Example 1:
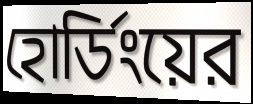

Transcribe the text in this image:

হোর্ডিংয়ের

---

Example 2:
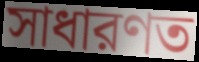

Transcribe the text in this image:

সাধারণত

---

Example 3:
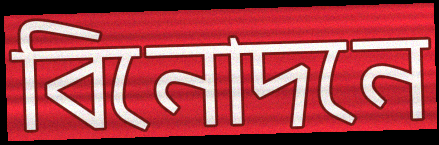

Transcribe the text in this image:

বিনোদনে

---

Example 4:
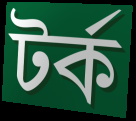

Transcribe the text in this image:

টর্ক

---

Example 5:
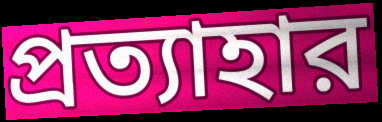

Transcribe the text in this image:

প্রত্যাহার